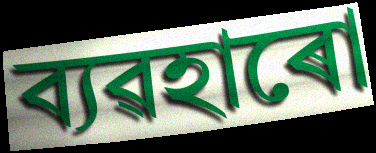
ব্যৱহাৰো